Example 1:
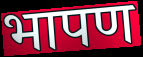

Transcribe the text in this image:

भापण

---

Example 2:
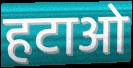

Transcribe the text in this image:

हटाओ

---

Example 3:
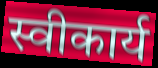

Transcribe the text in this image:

स्‍वीकार्य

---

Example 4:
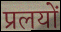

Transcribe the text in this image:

प्रलयों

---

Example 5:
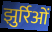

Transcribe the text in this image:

झुर्रिओं